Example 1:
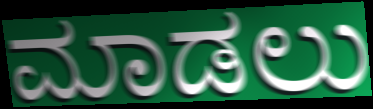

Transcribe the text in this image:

ಮಾಡಲು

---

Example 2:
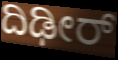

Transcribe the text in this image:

ದಿಢೀರ್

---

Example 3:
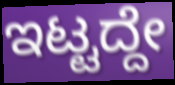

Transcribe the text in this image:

ಇಟ್ಟದ್ದೇ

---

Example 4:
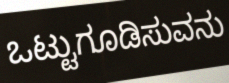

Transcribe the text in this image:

ಒಟ್ಟುಗೂಡಿಸುವನು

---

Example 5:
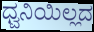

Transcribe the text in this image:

ಧ್ವನಿಯಿಲ್ಲದ